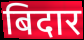
बिदार